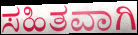
ಸಹಿತವಾಗಿ